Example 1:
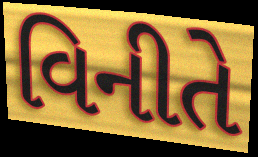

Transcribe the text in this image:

વિનીતે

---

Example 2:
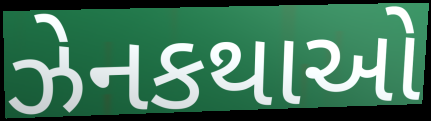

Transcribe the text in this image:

ઝેનકથાઓ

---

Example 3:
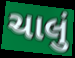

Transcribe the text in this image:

ચાલું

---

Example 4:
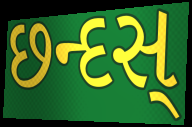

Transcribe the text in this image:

છન્દસ્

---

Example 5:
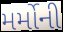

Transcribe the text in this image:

મર્મોની